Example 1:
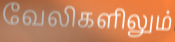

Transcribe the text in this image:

வேலிகளிலும்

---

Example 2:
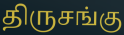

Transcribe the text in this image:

திருசங்கு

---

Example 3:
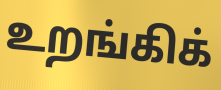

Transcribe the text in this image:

உறங்கிக்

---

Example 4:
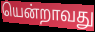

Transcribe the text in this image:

யென்றாவது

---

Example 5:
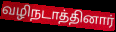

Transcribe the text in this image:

வழிநடாத்தினார்